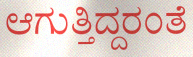
ಆಗುತ್ತಿದ್ದರಂತೆ